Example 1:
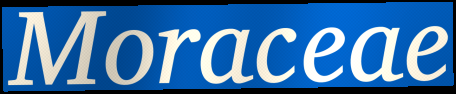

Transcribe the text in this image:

Moraceae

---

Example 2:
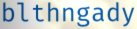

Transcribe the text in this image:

blthngady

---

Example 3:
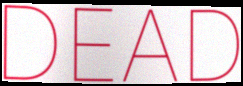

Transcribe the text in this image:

DEAD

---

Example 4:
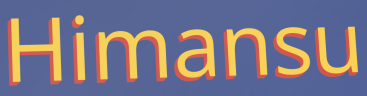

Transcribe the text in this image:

Himansu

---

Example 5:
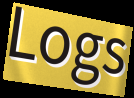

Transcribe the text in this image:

Logs